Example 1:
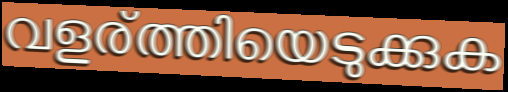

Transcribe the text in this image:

വളര്ത്തിയെടുക്കുക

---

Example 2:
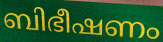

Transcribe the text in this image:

ബിഭീഷണം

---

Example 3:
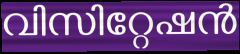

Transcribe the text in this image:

വിസിറ്റേഷൻ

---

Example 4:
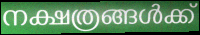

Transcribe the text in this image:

നക്ഷത്രങ്ങൾക്ക്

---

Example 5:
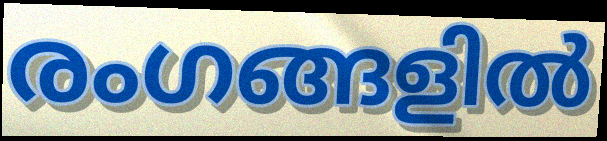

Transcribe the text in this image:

രംഗങ്ങളിൽ